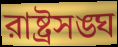
রাষ্ট্রসঙ্ঘ